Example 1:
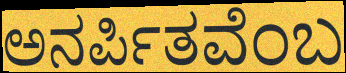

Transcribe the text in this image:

ಅನರ್ಪಿತವೆಂಬ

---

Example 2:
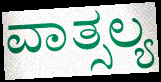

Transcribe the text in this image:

ವಾತ್ಸಲ್ಯ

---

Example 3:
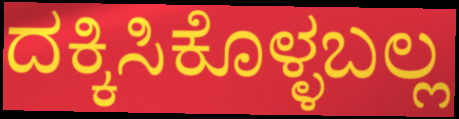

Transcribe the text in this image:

ದಕ್ಕಿಸಿಕೊಳ್ಳಬಲ್ಲ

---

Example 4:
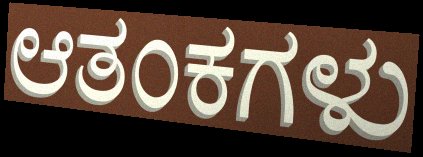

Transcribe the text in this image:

ಆತಂಕಗಳು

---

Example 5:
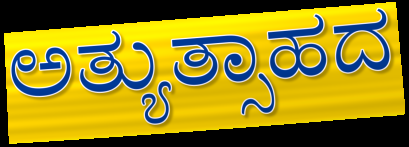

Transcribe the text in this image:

ಅತ್ಯುತ್ಸಾಹದ